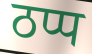
ठप्प